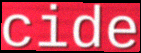
cide